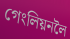
গেংলিয়নলৈ